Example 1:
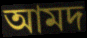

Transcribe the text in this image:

আমদ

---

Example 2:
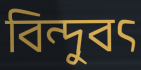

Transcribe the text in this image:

বিন্দুবৎ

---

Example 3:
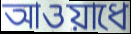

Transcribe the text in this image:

আওয়াধে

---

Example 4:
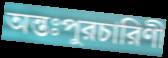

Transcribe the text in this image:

অন্তঃপুরচারিণী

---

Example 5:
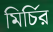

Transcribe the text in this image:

মির্চির